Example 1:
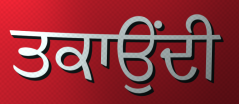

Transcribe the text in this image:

ਤਕਾਉਂਦੀ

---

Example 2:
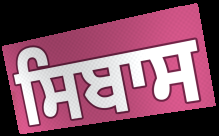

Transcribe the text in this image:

ਸਿਬਾਸ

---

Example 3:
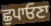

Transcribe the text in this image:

ਛੁਪਾਓਣਾ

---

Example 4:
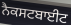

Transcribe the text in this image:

ਨੈਕਸਟਬਾਈਟ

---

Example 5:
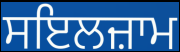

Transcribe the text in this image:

ਸਇਲਜ਼ਾਮ